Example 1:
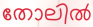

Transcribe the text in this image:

തോലിൽ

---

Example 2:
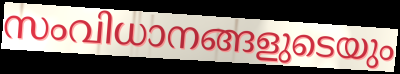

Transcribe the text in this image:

സംവിധാനങ്ങളുടെയും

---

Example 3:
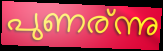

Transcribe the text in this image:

പുണര്ന്നു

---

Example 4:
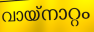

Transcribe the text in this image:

വായ്നാറ്റം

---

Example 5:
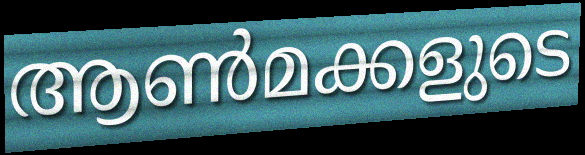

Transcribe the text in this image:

ആൺമക്കളുടെ